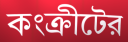
কংক্রীটের